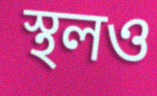
স্থলও